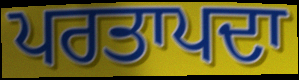
ਪਰਤਾਪਦਾ